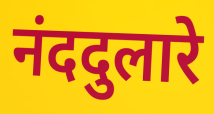
नंददुलारे